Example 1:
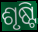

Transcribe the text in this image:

ଶୃଷ୍ଟି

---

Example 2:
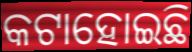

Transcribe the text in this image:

କଟାହୋଇଛି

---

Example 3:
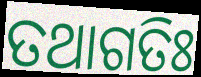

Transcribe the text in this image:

ତଥାଗତିଃ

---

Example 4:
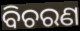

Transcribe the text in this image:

ବିଚରଣ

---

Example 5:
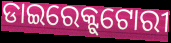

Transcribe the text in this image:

ଡାଇରେକ୍ଟ୍‌ଟୋରୀ